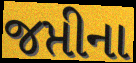
જપ્તીના